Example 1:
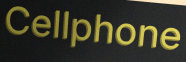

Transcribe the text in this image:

Cellphone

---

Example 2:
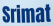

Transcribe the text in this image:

Srimat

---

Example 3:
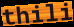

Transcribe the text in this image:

thili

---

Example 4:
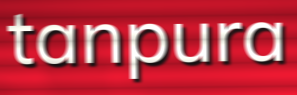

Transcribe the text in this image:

tanpura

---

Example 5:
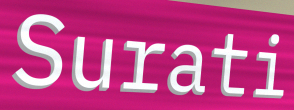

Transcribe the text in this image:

Surati